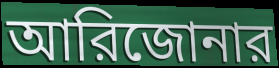
আরিজোনার